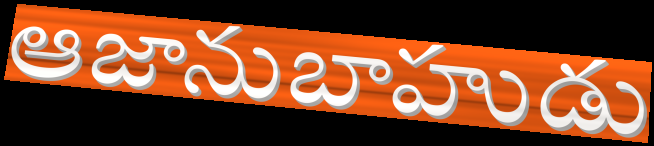
ఆజానుబాహుడు